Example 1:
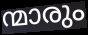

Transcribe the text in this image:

ന്മാരും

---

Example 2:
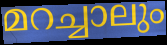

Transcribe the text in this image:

മറച്ചാലും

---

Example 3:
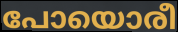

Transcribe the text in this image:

പോയൊരീ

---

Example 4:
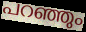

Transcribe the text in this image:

പറഞ്ഞും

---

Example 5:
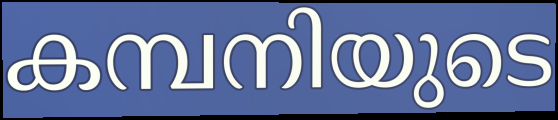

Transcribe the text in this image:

കമ്പനിയുടെ